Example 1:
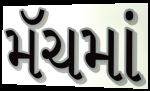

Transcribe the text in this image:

મૅચમાં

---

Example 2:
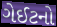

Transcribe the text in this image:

ગેઈટનો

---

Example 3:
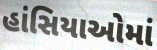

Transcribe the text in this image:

હાંસિયાઓમાં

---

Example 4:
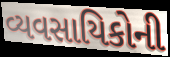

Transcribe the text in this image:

વ્યવસાયિકોની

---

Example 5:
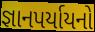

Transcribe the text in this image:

જ્ઞાનપર્યાયનો